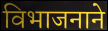
विभाजनाने